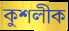
কুশলীক